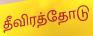
தீவிரத்தோடு